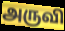
அருவி